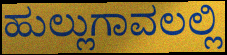
ಹುಲ್ಲುಗಾವಲಲ್ಲಿ